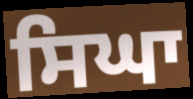
ਸਿਘਾ